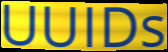
UUIDs